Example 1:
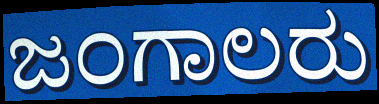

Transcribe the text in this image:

ಜಂಗಾಲರು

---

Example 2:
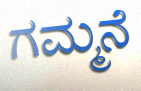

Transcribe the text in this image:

ಗಮ್ಮನೆ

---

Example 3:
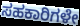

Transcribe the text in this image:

ಸಹಕಾರಿಗಳೇ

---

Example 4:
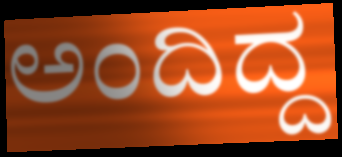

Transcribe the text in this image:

ಅಂದಿದ್ದ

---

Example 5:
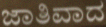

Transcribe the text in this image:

ಜಾತಿವಾದ